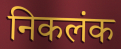
निकलंक